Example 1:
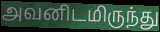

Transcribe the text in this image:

அவனிடமிருந்து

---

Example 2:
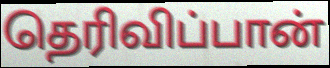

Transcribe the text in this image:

தெரிவிப்பான்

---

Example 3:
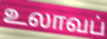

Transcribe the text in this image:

உலாவப்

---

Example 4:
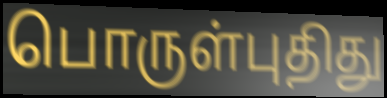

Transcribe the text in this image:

பொருள்புதிது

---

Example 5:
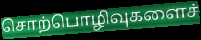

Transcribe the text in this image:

சொற்பொழிவுகளைச்